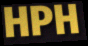
HPH